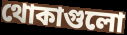
থোকাগুলো